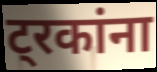
ट्रकांना